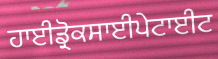
ਹਾਈਡ੍ਰੋਕਸਾਈਪੇਟਾਈਟ